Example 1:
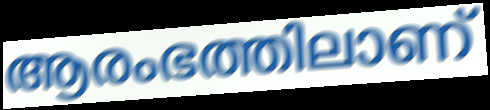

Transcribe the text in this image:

ആരംഭത്തിലാണ്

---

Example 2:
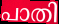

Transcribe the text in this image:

പാതി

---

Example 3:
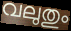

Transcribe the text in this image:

വലുതും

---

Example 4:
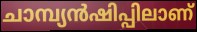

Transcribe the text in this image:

ചാമ്പ്യൻഷിപ്പിലാണ്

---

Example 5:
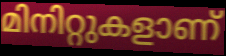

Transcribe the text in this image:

മിനിറ്റുകളാണ്